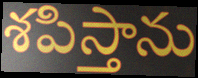
శపిస్తాను